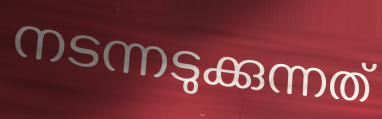
നടന്നടുക്കുന്നത്